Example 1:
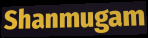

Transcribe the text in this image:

Shanmugam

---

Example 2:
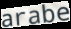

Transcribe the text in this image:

arabe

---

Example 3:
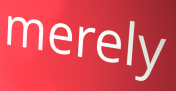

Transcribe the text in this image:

merely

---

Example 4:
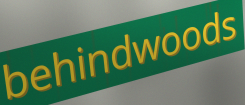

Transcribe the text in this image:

behindwoods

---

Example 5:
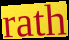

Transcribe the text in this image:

rath